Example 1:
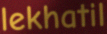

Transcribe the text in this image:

lekhatil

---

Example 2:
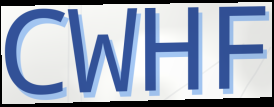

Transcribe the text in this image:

CWHF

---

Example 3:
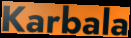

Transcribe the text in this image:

Karbala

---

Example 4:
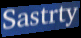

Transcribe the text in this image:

Sastrty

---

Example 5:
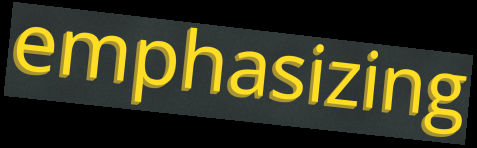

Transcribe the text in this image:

emphasizing